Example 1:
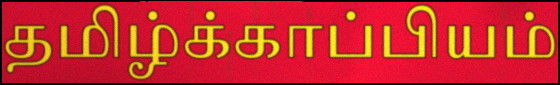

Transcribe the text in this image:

தமிழ்க்காப்பியம்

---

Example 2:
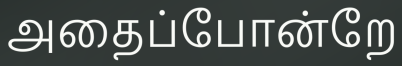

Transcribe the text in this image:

அதைப்போன்றே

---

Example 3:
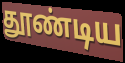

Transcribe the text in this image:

தூண்டிய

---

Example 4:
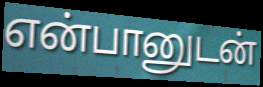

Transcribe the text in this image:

என்பானுடன்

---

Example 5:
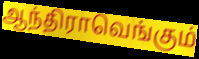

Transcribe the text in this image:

ஆந்திராவெங்கும்